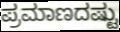
ಪ್ರಮಾಣದಷ್ಟು